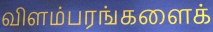
விளம்பரங்களைக்